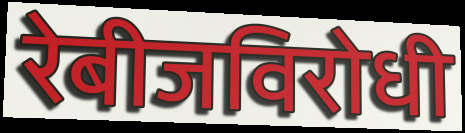
रेबीजविरोधी